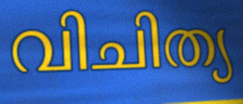
വിചിത്യ